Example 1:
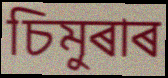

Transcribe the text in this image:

চিমুৰাৰ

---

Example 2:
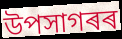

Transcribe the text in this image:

উপসাগৰৰ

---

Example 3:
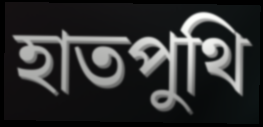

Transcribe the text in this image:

হাতপুথি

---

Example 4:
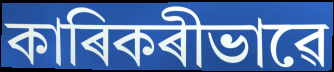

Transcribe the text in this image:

কাৰিকৰীভাৱে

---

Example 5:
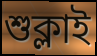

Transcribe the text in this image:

শুক্লাই